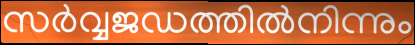
സർവ്വജഡത്തിൽനിന്നും